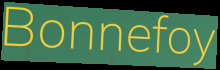
Bonnefoy